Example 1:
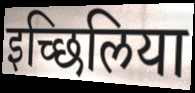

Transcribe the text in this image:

इच्छिलिया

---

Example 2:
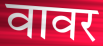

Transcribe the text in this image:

वावर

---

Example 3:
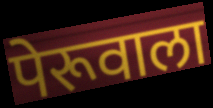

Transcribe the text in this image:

पेरूवाला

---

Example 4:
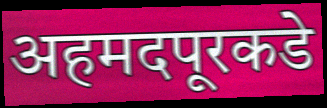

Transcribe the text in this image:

अहमदपूरकडे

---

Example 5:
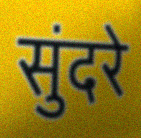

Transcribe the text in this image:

सुंदरे